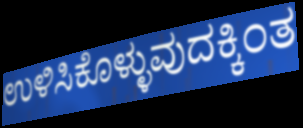
ಉಳಿಸಿಕೊಳ್ಳುವುದಕ್ಕಿಂತ